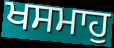
ਖਸਮਾਹੁ